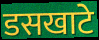
डसखाटे